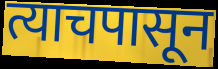
त्याचपासून